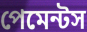
পেমেন্টস